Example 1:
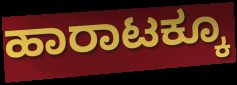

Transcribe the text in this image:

ಹಾರಾಟಕ್ಕೂ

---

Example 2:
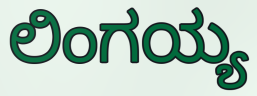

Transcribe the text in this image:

ಲಿಂಗಯ್ಯ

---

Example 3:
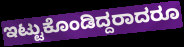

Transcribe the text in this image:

ಇಟ್ಟುಕೊಂಡಿದ್ದರಾದರೂ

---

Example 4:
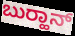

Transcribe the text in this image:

ಬುರ‍್ಹಾನ್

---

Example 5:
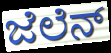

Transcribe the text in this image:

ಜೆಲೆನ್